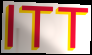
ITT